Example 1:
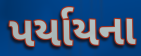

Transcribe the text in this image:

પર્યાયના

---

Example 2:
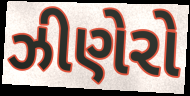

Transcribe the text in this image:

ઝીણેરો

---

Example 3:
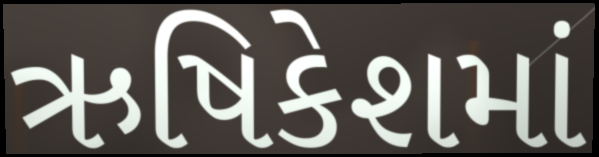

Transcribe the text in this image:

ઋષિકેશમાં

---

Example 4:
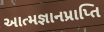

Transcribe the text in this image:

આત્મજ્ઞાનપ્રાપ્તિ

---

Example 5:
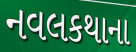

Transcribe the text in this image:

નવલકથાના